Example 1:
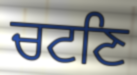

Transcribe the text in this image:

ਚਟਣਿ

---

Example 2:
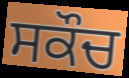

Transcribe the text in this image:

ਸਕੌਚ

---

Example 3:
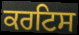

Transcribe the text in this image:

ਕਰਟਿਸ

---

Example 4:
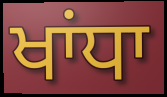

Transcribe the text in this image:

ਖਾਂਧਾ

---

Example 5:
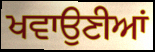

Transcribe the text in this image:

ਖਵਾਉਣੀਆਂ